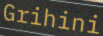
Grihini